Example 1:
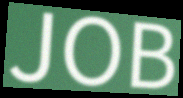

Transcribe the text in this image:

JOB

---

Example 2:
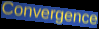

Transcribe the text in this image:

Convergence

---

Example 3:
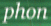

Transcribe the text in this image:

phon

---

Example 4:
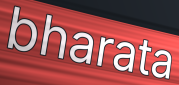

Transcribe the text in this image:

bharata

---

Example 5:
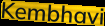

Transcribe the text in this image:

Kembhavi